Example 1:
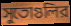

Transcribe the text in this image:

সুতোগুলির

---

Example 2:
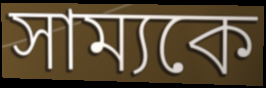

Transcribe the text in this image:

সাম্যকে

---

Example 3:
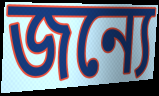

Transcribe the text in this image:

জন্যে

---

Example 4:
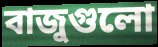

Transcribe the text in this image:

বাজুগুলো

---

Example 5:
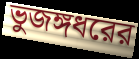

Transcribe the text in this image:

ভুজঙ্গধরের